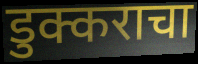
डुक्कराचा